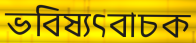
ভবিষ্যৎবাচক